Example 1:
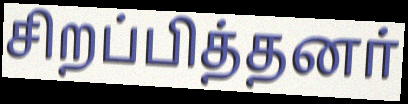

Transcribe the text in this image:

சிறப்பித்தனர்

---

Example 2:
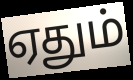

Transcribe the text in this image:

ஏதும்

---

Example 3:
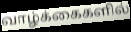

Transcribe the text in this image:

வாழ்க்கைகளில்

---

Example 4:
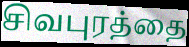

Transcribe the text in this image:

சிவபுரத்தை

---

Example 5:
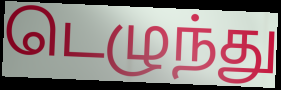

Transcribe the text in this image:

டெழுந்து